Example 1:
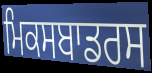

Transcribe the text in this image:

ਮਿਕਸਬਾਡਰਸ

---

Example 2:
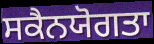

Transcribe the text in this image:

ਸਕੈਨਯੋਗਤਾ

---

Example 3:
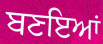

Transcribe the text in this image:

ਬਣਇਆਂ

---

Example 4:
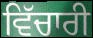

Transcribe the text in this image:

ਵਿੱਚਾਰੀ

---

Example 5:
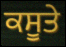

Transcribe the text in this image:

ਕਸੂਤੇ